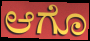
ಆಗೊ